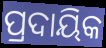
ପ୍ରଦାୟିକ